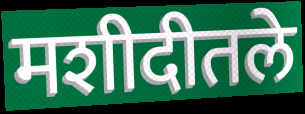
मशीदीतले